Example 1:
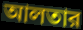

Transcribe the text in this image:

আলতার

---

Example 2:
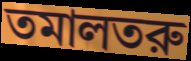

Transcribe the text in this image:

তমালতরু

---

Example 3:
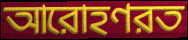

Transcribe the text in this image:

আরোহণরত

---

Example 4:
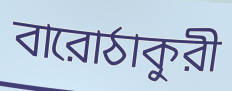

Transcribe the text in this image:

বারোঠাকুরী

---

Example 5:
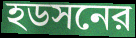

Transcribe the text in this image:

হডসনের